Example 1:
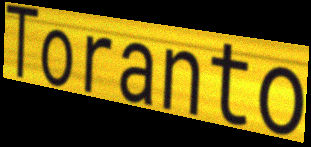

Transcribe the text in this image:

Toranto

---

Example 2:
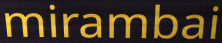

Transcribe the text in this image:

mirambai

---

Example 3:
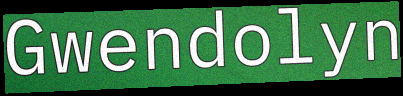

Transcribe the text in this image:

Gwendolyn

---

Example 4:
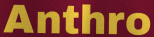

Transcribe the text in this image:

Anthro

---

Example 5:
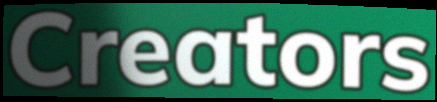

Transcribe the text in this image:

Creators